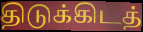
திடுக்கிடத்